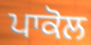
ਪਾਕੋਲ